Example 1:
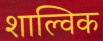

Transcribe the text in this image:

शाल्विक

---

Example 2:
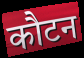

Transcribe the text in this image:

कौटन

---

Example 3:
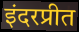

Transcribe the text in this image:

इंदरप्रीत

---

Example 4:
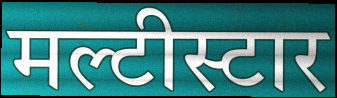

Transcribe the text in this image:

मल्टीस्टार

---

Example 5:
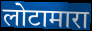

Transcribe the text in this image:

लोटामारा